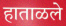
हाताळले